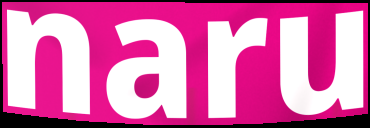
naru